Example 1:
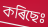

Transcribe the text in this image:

কৰিছেঃ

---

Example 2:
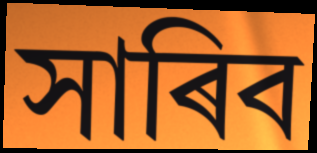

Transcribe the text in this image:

সাৰিব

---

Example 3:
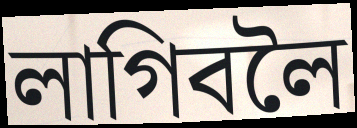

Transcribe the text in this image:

লাগিবলৈ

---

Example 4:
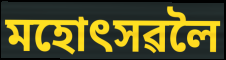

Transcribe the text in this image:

মহোৎসৱলৈ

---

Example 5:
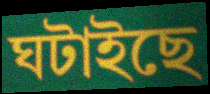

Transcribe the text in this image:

ঘটাইছে